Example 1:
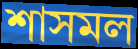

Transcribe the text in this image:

শাসমল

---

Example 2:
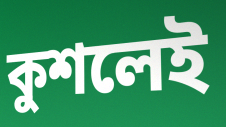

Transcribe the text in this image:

কুশলেই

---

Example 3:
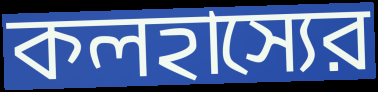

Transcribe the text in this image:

কলহাস্যের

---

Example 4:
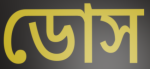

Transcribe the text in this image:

ডোস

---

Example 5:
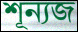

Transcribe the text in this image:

শূন্যজ